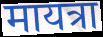
मायत्रा